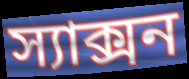
স্যাক্সন